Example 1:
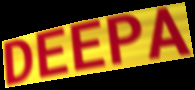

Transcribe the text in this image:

DEEPA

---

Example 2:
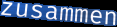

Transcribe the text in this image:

zusammen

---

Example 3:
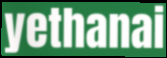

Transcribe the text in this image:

yethanai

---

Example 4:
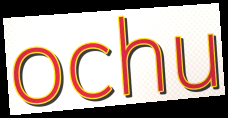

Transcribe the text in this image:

ochu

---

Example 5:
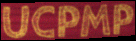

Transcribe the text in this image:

UCPMP